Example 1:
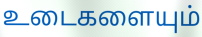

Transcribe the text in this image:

உடைகளையும்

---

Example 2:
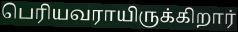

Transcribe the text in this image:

பெரியவராயிருக்கிறார்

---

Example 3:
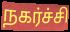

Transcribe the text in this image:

நகர்ச்சி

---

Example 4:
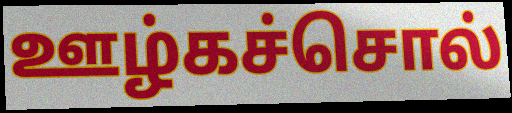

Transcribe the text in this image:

ஊழ்கச்சொல்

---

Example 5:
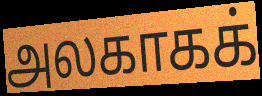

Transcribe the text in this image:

அலகாகக்